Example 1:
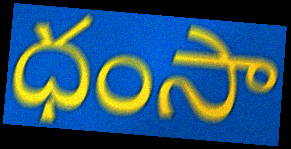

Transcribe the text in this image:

ధంసా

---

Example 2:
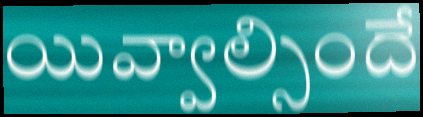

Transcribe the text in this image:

యివ్వాల్సిందే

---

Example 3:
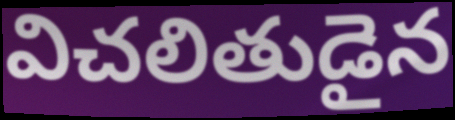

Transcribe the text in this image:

విచలితుడైన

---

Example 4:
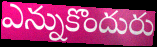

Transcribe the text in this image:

ఎన్నుకొందురు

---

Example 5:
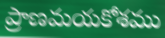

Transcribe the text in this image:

ప్రాణమయకోశము